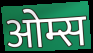
ओम्स